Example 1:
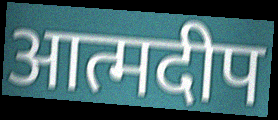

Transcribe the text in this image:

आत्मदीप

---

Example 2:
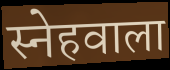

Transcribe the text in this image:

स्नेहवाला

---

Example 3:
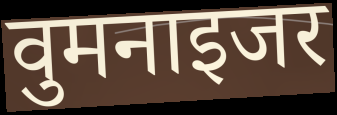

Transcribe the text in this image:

वुमनाइजर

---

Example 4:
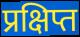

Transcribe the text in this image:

प्रक्षिप्त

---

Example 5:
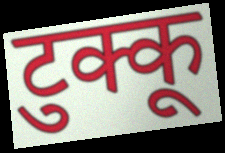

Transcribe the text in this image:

टुक्कू